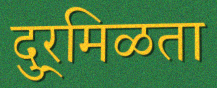
दुर्मिळता